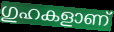
ഗുഹകളാണ്